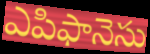
ఎపిఫానెసు